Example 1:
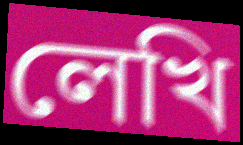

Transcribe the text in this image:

লেখি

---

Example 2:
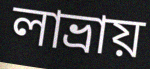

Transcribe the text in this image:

লাভ্ৰায়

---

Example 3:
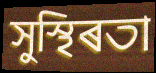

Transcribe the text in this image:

সুস্থিৰতা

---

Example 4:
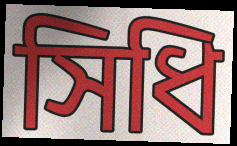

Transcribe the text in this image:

সিধি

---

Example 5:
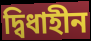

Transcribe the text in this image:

দ্বিধাহীন